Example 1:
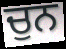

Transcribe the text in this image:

ਚੁਨ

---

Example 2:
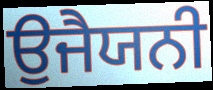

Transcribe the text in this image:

ਉਜੈਯਨੀ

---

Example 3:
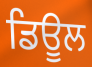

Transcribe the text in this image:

ਡਿਊਲ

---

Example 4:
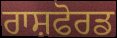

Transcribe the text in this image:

ਰਾਸ਼ਫੋਰਡ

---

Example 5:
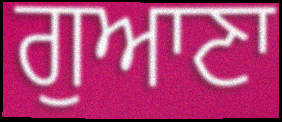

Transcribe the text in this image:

ਗੁਆਣਾ